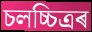
চলচ্চিত্ৰৰ